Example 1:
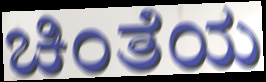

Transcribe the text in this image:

ಚಿಂತೆಯ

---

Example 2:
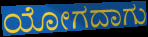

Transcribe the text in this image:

ಯೋಗದಾಗು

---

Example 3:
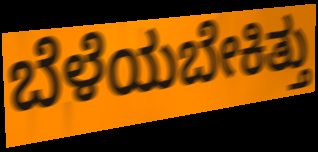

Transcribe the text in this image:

ಬೆಳೆಯಬೇಕಿತ್ತು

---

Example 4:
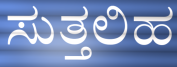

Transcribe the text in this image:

ಸುತ್ತಲಿಹ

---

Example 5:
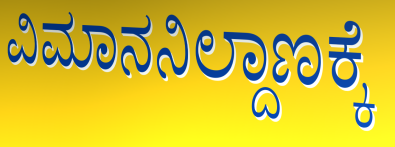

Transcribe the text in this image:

ವಿಮಾನನಿಲ್ದಾಣಕ್ಕೆ